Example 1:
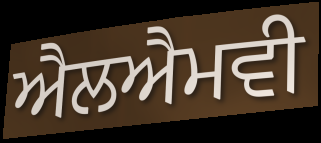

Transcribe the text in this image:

ਐਲਐਮਵੀ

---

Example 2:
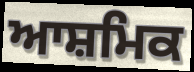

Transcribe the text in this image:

ਆਸ਼ਮਿਕ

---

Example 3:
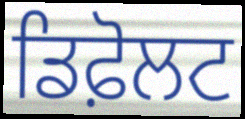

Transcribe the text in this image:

ਡਿਫ਼ੋਲਟ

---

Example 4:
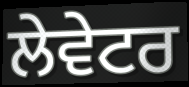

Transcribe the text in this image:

ਲੇਵੇਟਰ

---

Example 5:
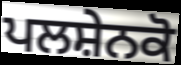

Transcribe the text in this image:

ਪਲਸ਼ੇਨਕੋ